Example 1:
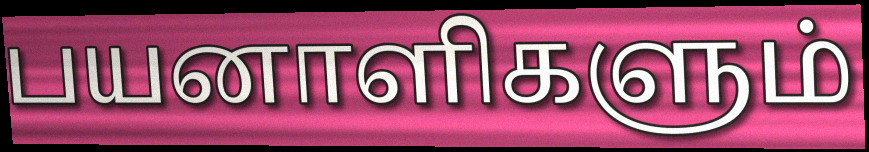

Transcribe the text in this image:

பயனாளிகளும்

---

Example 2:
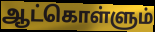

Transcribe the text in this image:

ஆட்கொள்ளும்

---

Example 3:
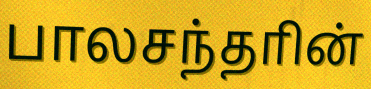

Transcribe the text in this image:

பாலசந்தரின்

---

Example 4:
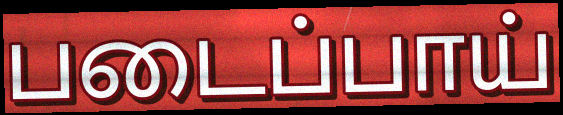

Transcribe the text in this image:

படைப்பாய்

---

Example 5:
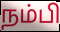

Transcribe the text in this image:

நம்பி